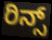
ರಿನ್ಸ್